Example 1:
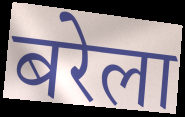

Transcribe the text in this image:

बरेला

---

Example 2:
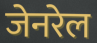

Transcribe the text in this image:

जेनरेल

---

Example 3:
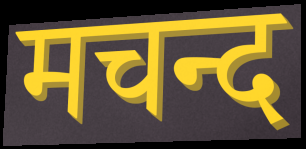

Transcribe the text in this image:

मचन्द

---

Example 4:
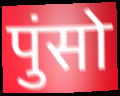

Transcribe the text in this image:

पुंसो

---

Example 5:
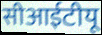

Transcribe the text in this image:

सीआईटीयू